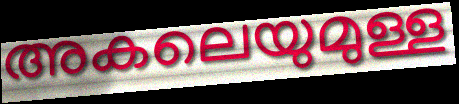
അകലെയുമുള്ള